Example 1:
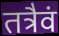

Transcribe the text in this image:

तत्रैवं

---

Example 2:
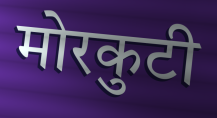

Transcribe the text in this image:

मोरकुटी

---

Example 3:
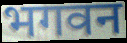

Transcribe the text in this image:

भगवन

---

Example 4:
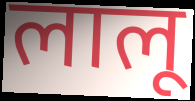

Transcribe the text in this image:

लालू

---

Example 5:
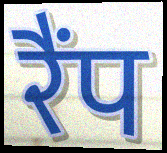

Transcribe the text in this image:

रैंप